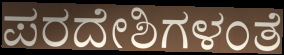
ಪರದೇಶಿಗಳಂತೆ